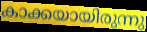
കാക്കയായിരുന്നു